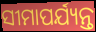
ସୀମାପର୍ଯ୍ୟନ୍ତ